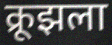
क्रूझला